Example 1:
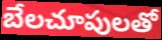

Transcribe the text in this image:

బేలచూపులతో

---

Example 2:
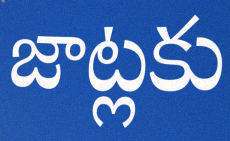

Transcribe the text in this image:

జాట్లకు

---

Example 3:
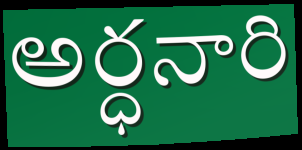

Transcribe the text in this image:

అర్ధనారి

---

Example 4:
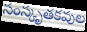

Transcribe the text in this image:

సంస్కృతకవుల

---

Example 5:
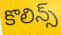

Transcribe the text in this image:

కొలిన్స్